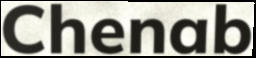
Chenab